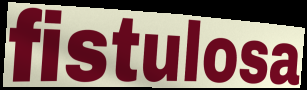
fistulosa